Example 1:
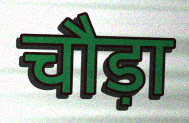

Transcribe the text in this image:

चौड़ा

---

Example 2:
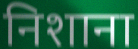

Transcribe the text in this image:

निशाना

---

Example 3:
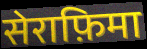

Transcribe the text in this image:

सेराफ़िमा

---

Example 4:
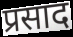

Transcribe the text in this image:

प्रसाद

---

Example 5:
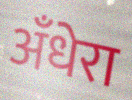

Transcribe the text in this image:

अँधेरा